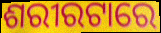
ଶରୀରଟାରେ